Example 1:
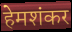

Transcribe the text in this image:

हेमशंकर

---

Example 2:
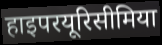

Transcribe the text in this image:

हाइपरयूरिसीमिया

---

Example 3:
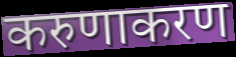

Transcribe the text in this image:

करुणाकरण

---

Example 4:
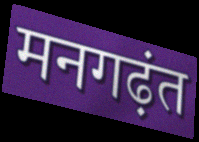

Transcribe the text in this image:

मनगढ़ंत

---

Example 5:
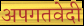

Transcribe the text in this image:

अपगतवेदी